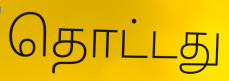
தொட்டது